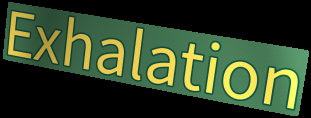
Exhalation